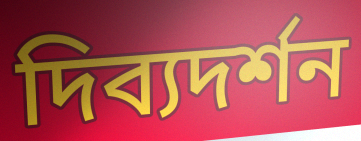
দিব্যদর্শন